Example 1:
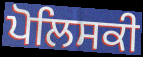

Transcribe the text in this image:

ਪੋਲਿਸਕੀ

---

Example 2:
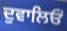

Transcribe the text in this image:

ਦੁਵਾਲਿਓਂ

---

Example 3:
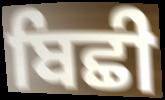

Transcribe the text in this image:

ਬਿਛੀ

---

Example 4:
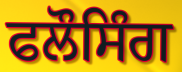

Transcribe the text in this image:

ਫਲੌਸਿੰਗ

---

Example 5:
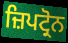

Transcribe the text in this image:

ਜ਼ਿਪਟ੍ਰੋਨ